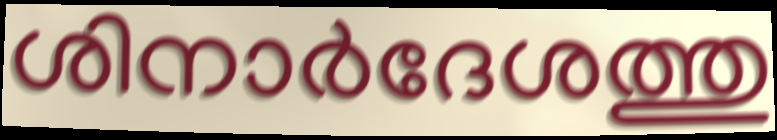
ശിനാർദേശത്തു